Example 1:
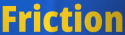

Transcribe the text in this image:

Friction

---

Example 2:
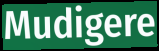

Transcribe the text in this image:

Mudigere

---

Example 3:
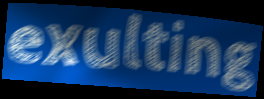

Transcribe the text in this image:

exulting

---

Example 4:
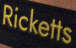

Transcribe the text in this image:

Ricketts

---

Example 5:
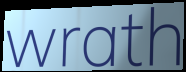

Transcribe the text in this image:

wrath